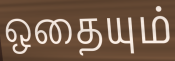
ஒதையும்